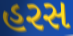
હરસ